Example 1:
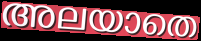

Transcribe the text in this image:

അലയാതെ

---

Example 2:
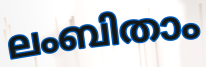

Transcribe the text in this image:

ലംബിതാം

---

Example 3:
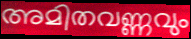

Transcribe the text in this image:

അമിതവണ്ണവും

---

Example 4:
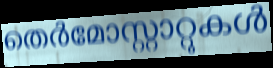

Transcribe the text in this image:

തെർമോസ്റ്റാറ്റുകൾ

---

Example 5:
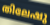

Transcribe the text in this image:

തിലേഷു